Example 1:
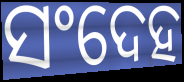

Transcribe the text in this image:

ସଂଦେହ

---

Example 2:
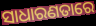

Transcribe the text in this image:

ସାଧାରଣତାରେ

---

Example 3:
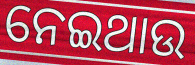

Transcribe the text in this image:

ନେଇଥାଉ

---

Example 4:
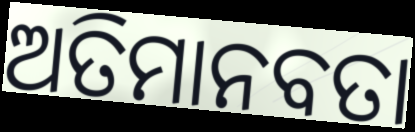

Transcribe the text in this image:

ଅତିମାନବତା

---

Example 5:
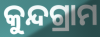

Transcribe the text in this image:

କୁନ୍ଦଗ୍ରାମ